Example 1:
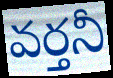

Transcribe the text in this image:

వర్తనీ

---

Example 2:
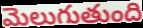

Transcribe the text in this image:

మెలుగుతుంది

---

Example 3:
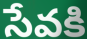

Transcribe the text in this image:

సేవకి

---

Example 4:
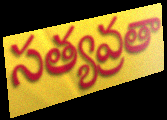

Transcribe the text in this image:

సత్యవ్రతా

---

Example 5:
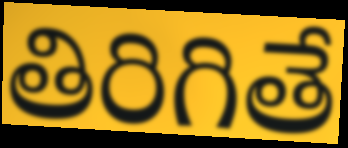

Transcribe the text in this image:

తిరిగితే